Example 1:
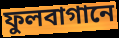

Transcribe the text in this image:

ফুলবাগানে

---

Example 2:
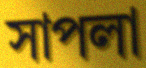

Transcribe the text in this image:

সাপলা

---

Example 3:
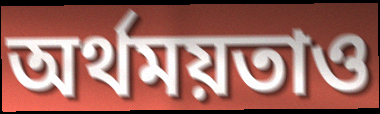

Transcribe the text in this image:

অর্থময়তাও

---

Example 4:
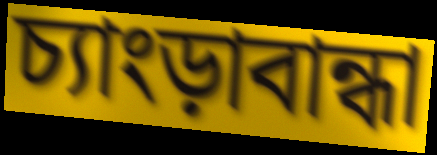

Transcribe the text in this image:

চ্যাংড়াবান্ধা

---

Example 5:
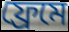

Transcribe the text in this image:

ফ্রেমে